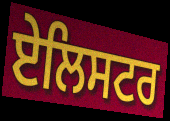
ਏਲਿਸਟਰ